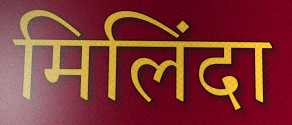
मिलिंदा